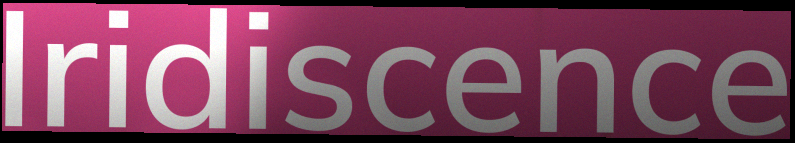
Iridiscence